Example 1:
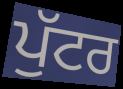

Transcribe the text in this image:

ਪੁੱਟਰ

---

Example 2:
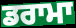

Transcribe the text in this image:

ਡਰਾਮਾ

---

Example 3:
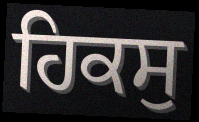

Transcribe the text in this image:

ਹਿਕਸੁ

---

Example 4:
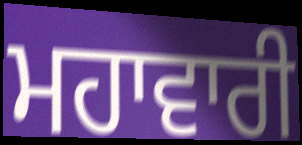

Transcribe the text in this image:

ਮਹਾਵਾਰੀ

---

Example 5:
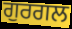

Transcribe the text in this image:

ਗੁਰਗਲ